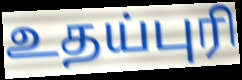
உதய்புரி